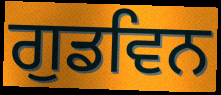
ਗੁਡਵਿਨ